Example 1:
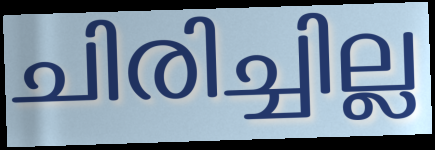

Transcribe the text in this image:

ചിരിച്ചില്ല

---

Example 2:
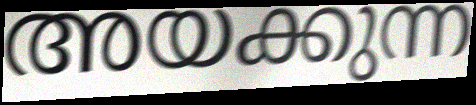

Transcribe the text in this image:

അയക്കുന്ന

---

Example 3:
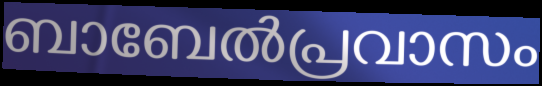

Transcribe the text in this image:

ബാബേൽപ്രവാസം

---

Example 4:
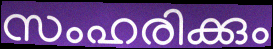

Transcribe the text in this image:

സംഹരിക്കും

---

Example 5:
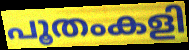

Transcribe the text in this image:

പൂതംകളി